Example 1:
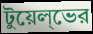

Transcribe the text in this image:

টুয়েল্ভের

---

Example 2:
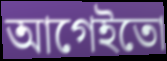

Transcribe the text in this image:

আগেইতো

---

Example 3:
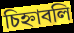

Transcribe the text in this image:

চিহ্নাবলি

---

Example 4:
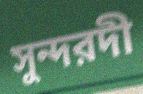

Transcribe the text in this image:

সুন্দরদী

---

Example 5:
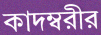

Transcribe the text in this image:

কাদম্বরীর